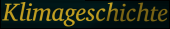
Klimageschichte